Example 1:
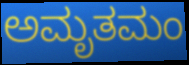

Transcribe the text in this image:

ಅಮೃತಮಂ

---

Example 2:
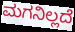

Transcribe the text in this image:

ಮಗನಿಲ್ಲದೆ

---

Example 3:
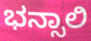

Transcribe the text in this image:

ಭನ್ಸಾಲಿ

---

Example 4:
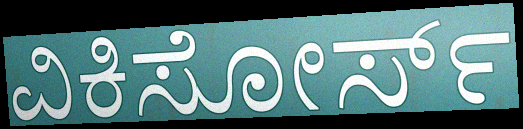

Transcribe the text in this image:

ವಿಕಿಸೋರ್ಸ್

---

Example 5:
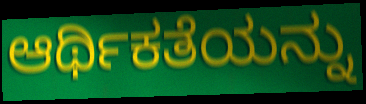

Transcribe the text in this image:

ಆರ್ಥಿಕತೆಯನ್ನು